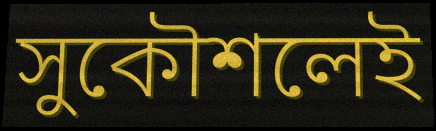
সুকৌশলেই